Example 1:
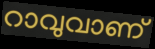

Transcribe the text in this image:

റാവുവാണ്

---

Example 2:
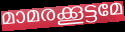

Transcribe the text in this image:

മാമരക്കൂട്ടമേ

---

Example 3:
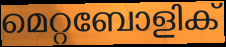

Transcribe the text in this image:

മെറ്റബോളിക്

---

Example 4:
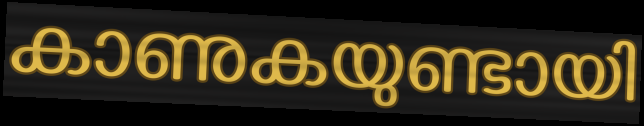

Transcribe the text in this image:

കാണുകയുണ്ടായി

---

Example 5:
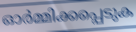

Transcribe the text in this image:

ഓർമ്മിക്കപ്പെടുക